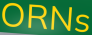
ORNs